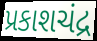
પ્રકાશચંદ્ર